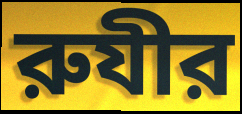
রুযীর